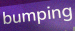
bumping